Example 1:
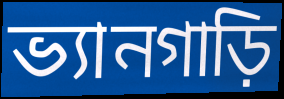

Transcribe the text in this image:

ভ্যানগাড়ি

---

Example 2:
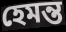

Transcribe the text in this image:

হেমন্ত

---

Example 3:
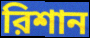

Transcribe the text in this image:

রিশান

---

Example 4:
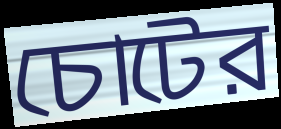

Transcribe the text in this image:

চোটের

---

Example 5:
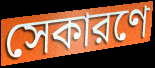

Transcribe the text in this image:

সেকারণে